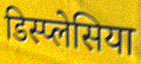
डिस्प्लेसिया